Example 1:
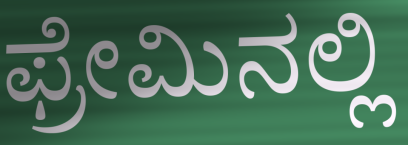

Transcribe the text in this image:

ಫ್ರೇಮಿನಲ್ಲಿ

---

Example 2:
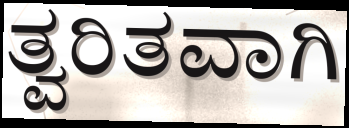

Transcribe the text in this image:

ತ್ವರಿತವಾಗಿ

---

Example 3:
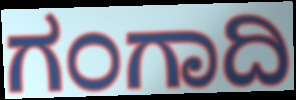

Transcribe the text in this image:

ಗಂಗಾದಿ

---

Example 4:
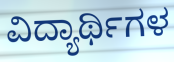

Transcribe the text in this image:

ವಿದ್ಯಾರ್ಥಿಗಳ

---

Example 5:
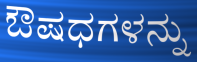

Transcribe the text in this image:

ಔಷಧಗಳನ್ನು